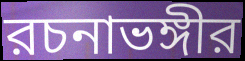
রচনাভঙ্গীর